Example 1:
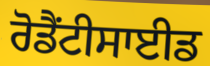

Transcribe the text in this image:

ਰੋਡੈਂਟੀਸਾਈਡ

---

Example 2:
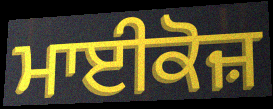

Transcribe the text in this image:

ਮਾਈਕੋਜ਼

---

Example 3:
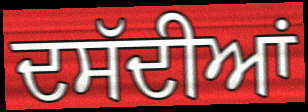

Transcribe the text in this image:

ਦਸੱਦੀਆਂ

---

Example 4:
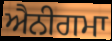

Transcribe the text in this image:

ਐਨੀਗਮਾ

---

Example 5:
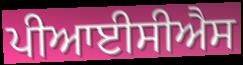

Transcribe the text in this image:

ਪੀਆਈਸੀਐਸ